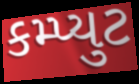
કમ્પ્યુટ